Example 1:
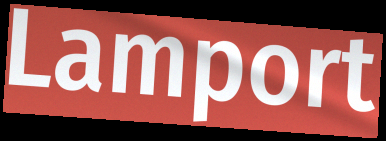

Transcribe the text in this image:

Lamport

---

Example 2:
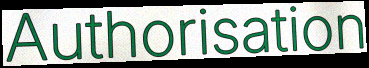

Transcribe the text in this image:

Authorisation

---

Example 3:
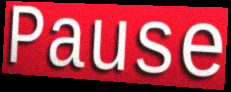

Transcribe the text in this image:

Pause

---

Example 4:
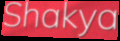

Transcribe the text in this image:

Shakya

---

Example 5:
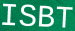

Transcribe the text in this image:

ISBT